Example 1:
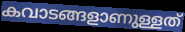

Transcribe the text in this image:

കവാടങ്ങളാണുള്ളത്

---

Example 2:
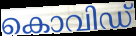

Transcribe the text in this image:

കൊവിഡ്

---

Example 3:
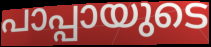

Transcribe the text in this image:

പാപ്പായുടെ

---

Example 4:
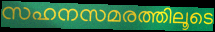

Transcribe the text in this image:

സഹനസമരത്തിലൂടെ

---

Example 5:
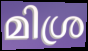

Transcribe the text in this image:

മിശ്ര